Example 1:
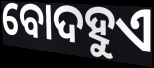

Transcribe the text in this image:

ବୋଦହୁଏ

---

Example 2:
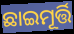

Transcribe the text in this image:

ଛାଇମୂର୍ତ୍ତି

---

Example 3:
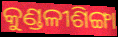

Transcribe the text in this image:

କୁଣ୍ଡଳୀଶିଙ୍ଗା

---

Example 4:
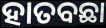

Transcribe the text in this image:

ହାତବଛା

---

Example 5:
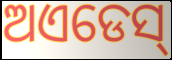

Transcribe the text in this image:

ଅଏଡେସ୍